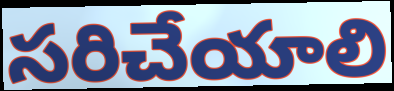
సరిచేయాలి